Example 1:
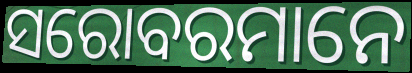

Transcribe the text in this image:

ସରୋବରମାନେ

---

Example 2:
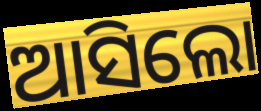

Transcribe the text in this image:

ଆସିଲୋ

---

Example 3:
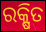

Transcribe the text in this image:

ରକ୍ଷିତ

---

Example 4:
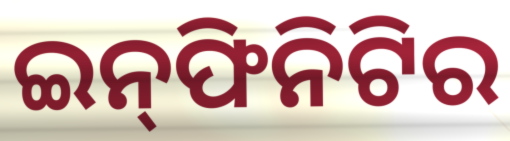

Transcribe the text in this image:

ଇନ୍‌ଫିନିଟିର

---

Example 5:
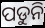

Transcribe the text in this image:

ପଡୁନି